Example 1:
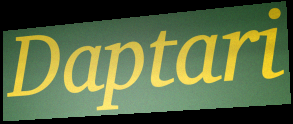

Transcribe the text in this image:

Daptari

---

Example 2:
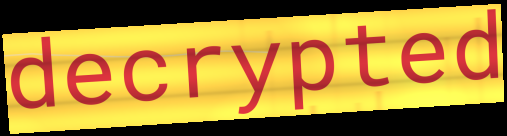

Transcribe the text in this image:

decrypted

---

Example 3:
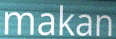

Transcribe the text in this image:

makan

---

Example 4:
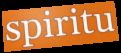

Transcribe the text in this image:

spiritu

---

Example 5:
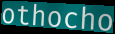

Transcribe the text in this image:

othocho